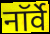
नॉर्वे